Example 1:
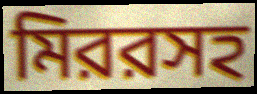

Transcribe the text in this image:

মিররসহ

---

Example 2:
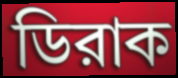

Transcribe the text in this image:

ডিরাক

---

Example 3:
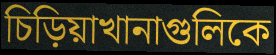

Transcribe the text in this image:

চিড়িয়াখানাগুলিকে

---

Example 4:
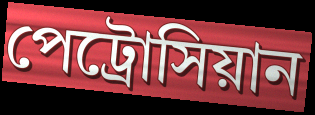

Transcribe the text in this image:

পেট্রোসিয়ান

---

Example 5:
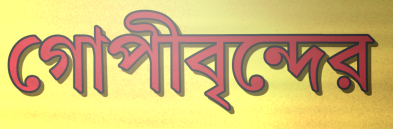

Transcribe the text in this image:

গোপীবৃন্দের